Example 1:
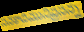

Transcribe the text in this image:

సనకాదిమునిప్రసన్న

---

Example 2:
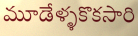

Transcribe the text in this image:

మూడేళ్ళకొకసారి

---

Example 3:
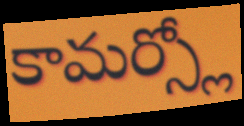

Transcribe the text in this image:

కామర్స్లో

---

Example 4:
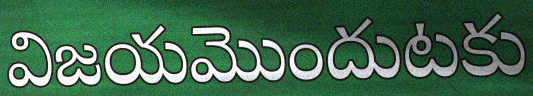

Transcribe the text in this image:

విజయమొందుటకు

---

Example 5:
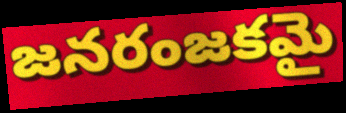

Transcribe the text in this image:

జనరంజకమై